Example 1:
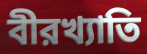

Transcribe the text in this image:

বীরখ্যাতি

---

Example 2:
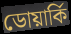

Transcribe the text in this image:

ডোয়ার্কি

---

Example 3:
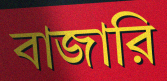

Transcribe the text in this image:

বাজারি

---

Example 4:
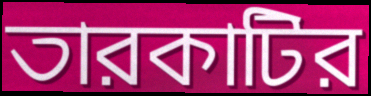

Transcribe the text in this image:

তারকাটির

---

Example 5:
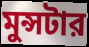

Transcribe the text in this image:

মুন্সটার